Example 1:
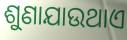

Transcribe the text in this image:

ଶୁଣାଯାଉଥାଏ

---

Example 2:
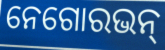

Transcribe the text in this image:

ନେଗୋରଭନ୍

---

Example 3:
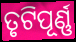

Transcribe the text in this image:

ତୃଟିପୂର୍ଣ୍ଣ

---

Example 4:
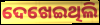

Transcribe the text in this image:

ଦେଖେଇଥିଲି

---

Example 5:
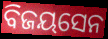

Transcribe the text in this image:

ବିଜୟସେନ